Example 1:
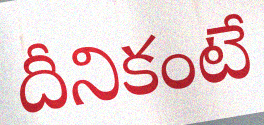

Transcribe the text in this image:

దీనికంటే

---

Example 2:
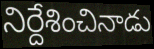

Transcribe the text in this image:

నిర్దేశించినాడు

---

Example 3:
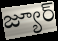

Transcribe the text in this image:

జ్యూర్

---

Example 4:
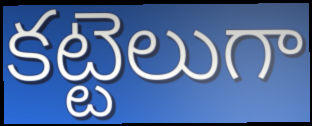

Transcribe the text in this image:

కట్టెలుగా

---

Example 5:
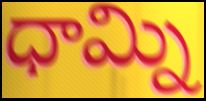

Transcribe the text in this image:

ధామ్ని